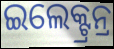
ଇଲେକ୍ଟ୍ରନ୍ର